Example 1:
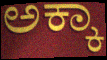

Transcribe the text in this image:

ಅಕ್ಕಾ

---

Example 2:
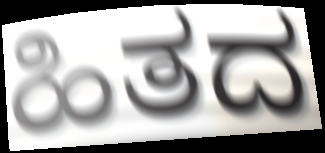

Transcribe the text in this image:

ಹಿತದ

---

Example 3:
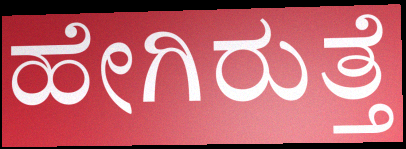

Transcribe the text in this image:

ಹೇಗಿರುತ್ತೆ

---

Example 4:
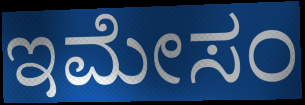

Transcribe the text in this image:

ಇಮೇಸಂ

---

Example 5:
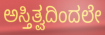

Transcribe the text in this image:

ಅಸ್ತಿತ್ವದಿಂದಲೇ